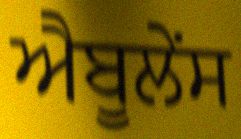
ਐਬੂਲੇਂਸ